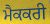
ਮੈਕਕਰੀ